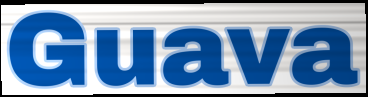
Guava